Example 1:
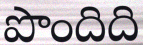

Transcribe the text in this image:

పొందిది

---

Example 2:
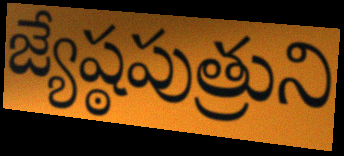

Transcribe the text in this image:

జ్యేష్ఠపుత్రుని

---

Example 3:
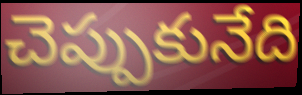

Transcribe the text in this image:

చెప్పుకునేది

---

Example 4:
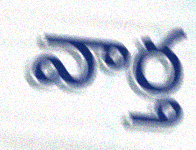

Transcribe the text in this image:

వార్త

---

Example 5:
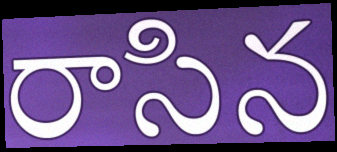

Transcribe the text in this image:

రాసిన